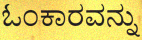
ಓಂಕಾರವನ್ನು